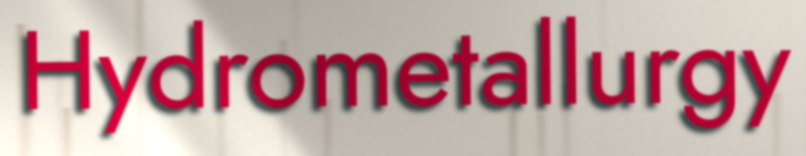
Hydrometallurgy